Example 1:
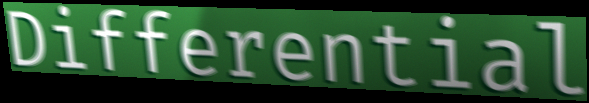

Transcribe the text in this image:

Differential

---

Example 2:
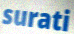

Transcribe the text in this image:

surati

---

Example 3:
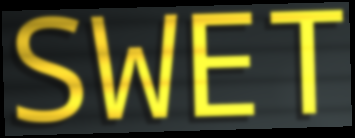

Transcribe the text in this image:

SWET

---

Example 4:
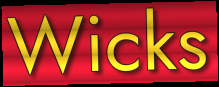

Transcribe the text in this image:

Wicks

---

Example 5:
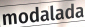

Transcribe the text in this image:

modalada